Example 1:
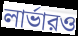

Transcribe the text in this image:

লার্ভারও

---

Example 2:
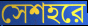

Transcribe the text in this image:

সেশহরে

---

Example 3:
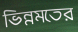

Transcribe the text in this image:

ভিন্নমতের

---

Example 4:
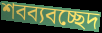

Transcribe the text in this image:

শবব্যবচ্ছেদ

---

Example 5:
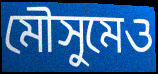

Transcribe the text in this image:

মৌসুমেও